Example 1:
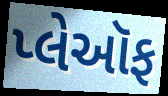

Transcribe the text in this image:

પ્લેઑફ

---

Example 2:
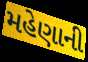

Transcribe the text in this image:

મહેણાની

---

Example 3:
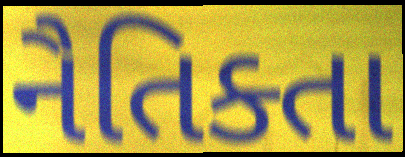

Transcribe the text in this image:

નૈતિક્તા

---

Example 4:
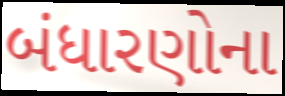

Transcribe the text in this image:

બંધારણોના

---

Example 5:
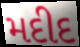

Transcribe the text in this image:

મદીદ